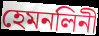
হেমনলিনী